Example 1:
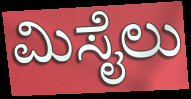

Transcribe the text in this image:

ಮಿಸೈಲು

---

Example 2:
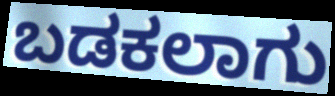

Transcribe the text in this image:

ಬಡಕಲಾಗು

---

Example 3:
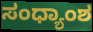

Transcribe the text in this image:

ಸಂಧ್ಯಾಂಶ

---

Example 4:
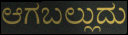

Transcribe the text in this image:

ಆಗಬಲ್ಲುದು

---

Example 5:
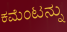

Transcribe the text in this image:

ಕಮೆಂಟನ್ನು